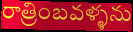
రాత్రింబవళ్ళను